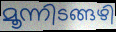
മൂന്നിടങ്ങഴി